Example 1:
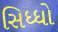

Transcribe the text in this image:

સિધ્ધો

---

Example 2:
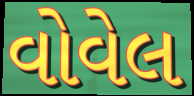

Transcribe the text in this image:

વોવેલ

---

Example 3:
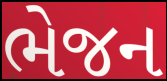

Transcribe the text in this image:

ભેજન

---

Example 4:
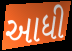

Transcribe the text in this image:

આધી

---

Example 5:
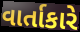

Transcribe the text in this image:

વાર્તાકારે